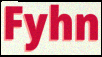
Fyhn